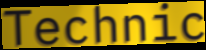
Technic